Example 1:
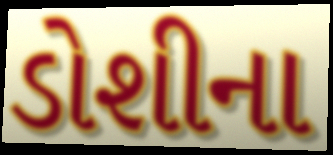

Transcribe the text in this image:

ડોશીના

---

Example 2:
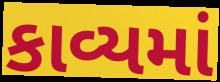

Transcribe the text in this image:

કાવ્યમાં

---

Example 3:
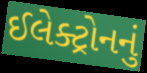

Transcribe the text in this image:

ઈલેક્ટ્રોનનું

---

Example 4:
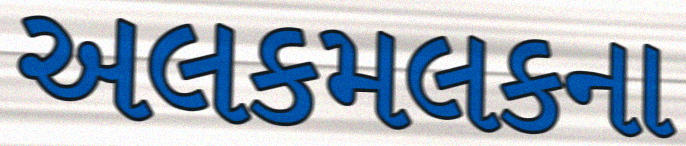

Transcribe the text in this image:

અલકમલકના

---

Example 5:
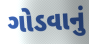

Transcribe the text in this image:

ગોડવાનું